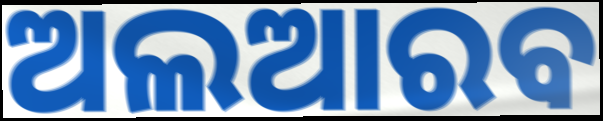
ଅଲଆରବ